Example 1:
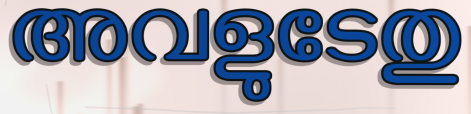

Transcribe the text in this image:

അവളുടേതു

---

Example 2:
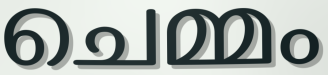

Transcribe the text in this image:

ചെമ്മം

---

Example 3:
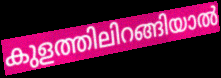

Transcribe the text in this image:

കുളത്തിലിറങ്ങിയാൽ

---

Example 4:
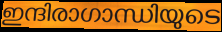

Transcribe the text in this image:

ഇന്ദിരാഗാന്ധിയുടെ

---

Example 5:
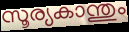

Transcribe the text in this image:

സൂര്യകാന്തും